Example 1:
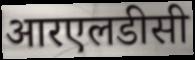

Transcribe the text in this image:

आरएलडीसी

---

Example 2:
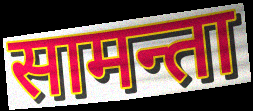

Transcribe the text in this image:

सामन्ता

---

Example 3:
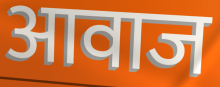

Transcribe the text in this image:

आवाज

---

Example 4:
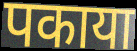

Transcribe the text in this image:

पकाया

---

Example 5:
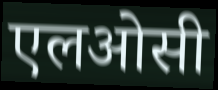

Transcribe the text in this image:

एलओसी